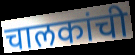
चालकांची